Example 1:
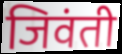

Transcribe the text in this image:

जिवंती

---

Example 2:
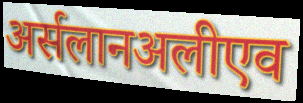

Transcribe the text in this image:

अर्सलानअलीएव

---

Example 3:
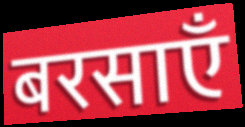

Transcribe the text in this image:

बरसाएँ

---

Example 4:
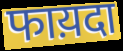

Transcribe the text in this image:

फाय़दा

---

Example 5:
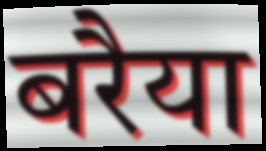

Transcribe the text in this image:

बरैया